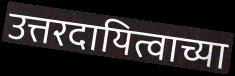
उत्तरदायित्वाच्या